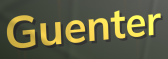
Guenter